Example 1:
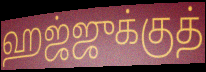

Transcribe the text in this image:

ஹஜ்ஜுக்குத்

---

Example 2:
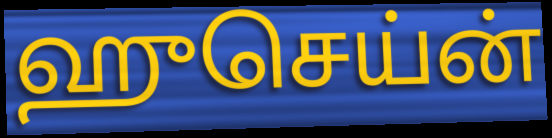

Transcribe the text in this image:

ஹுசெய்ன்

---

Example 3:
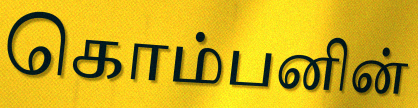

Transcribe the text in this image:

கொம்பனின்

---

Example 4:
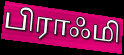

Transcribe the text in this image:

பிராஃமி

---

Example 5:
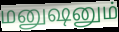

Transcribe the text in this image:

மனுஷனும்